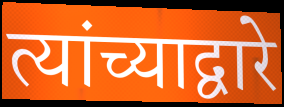
त्यांच्याद्वारे